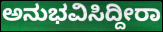
ಅನುಭವಿಸಿದ್ದೀರಾ